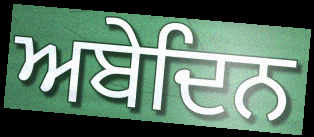
ਅਬੇਦਿਨ